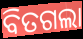
ବିତଗଲା